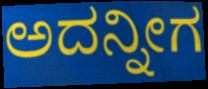
ಅದನ್ನೀಗ